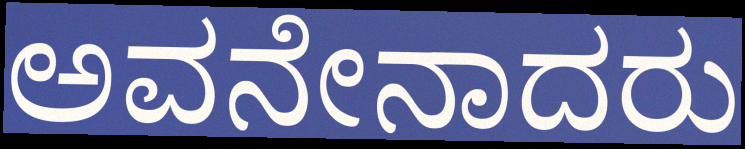
ಅವನೇನಾದರು